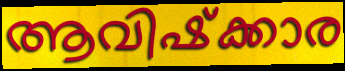
ആവിഷ്‌ക്കാര